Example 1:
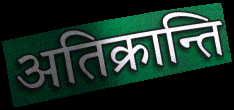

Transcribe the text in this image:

अतिक्रान्ति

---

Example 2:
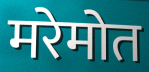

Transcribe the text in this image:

मरेमोत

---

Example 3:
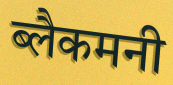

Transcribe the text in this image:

ब्‍लैकमनी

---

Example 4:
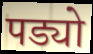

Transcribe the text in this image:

पड्यो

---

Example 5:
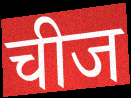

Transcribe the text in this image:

चीज